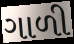
ગાળી